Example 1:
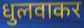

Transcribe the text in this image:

धुलवाकर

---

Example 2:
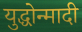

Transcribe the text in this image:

युद्धोन्मादी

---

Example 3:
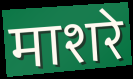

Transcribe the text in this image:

माशरे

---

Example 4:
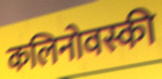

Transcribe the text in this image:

कलिनोवस्की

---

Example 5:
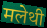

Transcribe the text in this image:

मलेथी